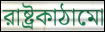
রাষ্ট্রকাঠামো